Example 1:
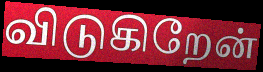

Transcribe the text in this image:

விடுகிறேன்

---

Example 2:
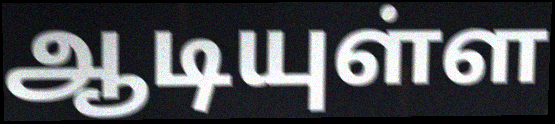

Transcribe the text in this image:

ஆடியுள்ள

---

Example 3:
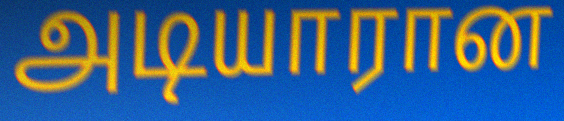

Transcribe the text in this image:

அடியாரான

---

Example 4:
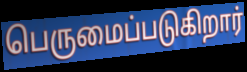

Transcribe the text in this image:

பெருமைப்படுகிறார்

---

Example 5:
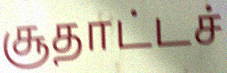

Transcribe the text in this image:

சூதாட்டச்